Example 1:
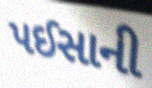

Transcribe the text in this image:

પઈસાની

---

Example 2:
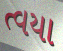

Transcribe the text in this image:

ત્વયા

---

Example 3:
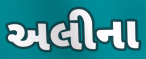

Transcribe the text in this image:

અલીના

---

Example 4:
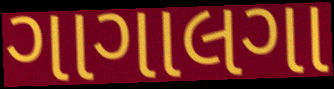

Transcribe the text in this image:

ગાગાલગા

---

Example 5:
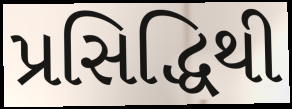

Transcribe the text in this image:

પ્રસિદ્ધિથી